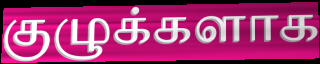
குழுக்களாக